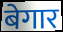
बेगार